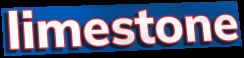
limestone